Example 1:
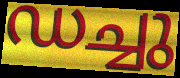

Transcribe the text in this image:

ഡച്ചു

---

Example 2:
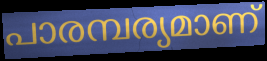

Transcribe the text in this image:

പാരമ്പര്യമാണ്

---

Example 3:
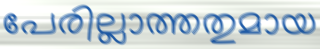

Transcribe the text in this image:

പേരില്ലാത്തതുമായ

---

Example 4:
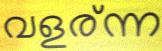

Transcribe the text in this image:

വളര്ന്ന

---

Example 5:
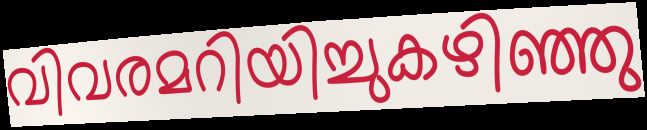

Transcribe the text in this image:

വിവരമറിയിച്ചുകഴിഞ്ഞു